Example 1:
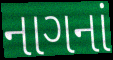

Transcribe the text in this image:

નાગનાં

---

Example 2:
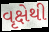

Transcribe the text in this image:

વૃક્ષેથી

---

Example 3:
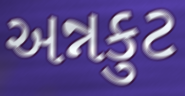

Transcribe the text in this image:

અન્નકુટ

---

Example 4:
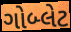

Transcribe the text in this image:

ગોબ્લેટ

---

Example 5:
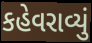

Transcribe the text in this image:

કહેવરાવ્યું